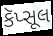
કૅપ્સૂલ